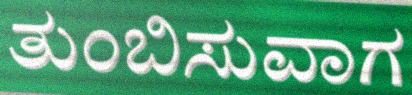
ತುಂಬಿಸುವಾಗ